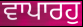
ਵਾਪਾਰਹੁ